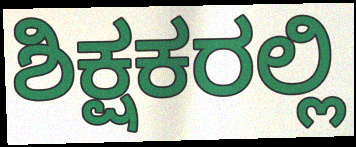
ಶಿಕ್ಷಕರಲ್ಲಿ